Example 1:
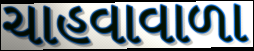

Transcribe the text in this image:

ચાહવાવાળા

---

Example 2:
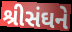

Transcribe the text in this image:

શ્રીસંઘને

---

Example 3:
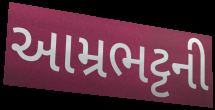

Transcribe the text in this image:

આમ્રભટ્ટની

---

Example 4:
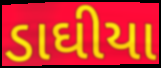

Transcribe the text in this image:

ડાઘીયા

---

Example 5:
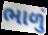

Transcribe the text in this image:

ભાળું